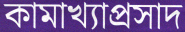
কামাখ্যাপ্রসাদ